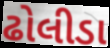
ઢોલીડા